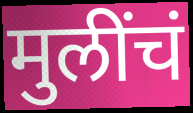
मुलींचं